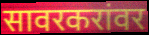
सावरकरांवर